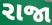
રાજા